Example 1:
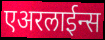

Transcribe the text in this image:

एअरलाईन्स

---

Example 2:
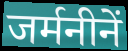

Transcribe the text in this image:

जर्मनीनें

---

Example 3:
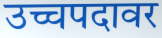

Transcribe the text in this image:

उच्चपदावर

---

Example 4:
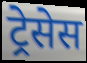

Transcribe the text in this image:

ट्रेसेस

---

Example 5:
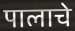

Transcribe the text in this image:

पालाचे